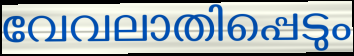
വേവലാതിപ്പെടും